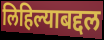
लिहिल्याबद्दल